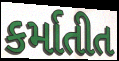
કર્માતીત